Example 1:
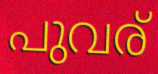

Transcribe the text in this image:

പുവര്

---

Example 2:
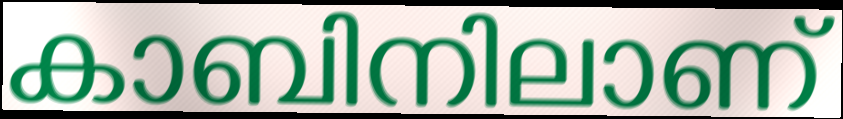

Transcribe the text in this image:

കാബിനിലാണ്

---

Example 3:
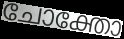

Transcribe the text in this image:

ചോക്തോ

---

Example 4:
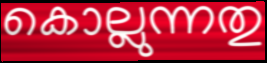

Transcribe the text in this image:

കൊല്ലുന്നതു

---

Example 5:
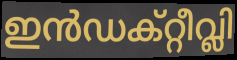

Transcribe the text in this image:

ഇൻഡക്റ്റീവ്ലി